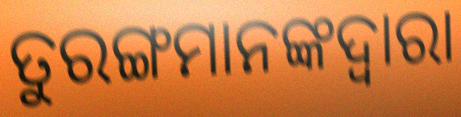
ତୁରଙ୍ଗମାନଙ୍କଦ୍ୱାରା